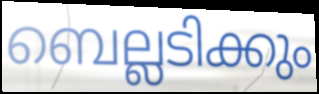
ബെല്ലടിക്കും